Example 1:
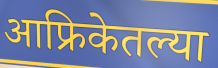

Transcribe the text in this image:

आफ्रिकेतल्या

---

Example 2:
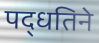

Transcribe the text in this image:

पद्धतिने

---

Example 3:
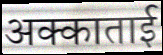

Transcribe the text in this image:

अक्काताई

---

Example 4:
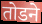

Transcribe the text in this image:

तोडने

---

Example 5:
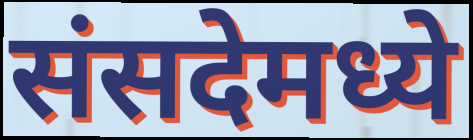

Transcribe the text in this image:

संसदेमध्ये